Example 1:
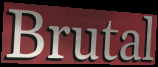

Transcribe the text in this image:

Brutal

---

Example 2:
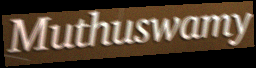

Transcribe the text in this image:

Muthuswamy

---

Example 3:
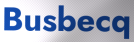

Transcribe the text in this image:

Busbecq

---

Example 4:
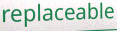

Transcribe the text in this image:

replaceable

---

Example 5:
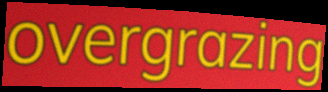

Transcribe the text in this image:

overgrazing